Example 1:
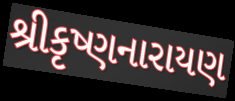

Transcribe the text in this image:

શ્રીકૃષ્ણનારાયણ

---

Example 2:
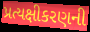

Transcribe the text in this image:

પ્રત્યક્ષીકરણની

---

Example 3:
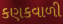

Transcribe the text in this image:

કણકવાળી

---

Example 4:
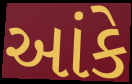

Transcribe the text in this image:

આંકે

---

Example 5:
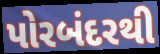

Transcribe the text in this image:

પોરબંદરથી